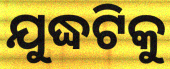
ଯୁଦ୍ଧଟିକୁ